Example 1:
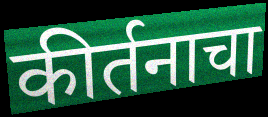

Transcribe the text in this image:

कीर्तनाचा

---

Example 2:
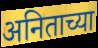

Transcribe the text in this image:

अनिताच्या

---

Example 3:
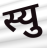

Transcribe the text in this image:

स्यु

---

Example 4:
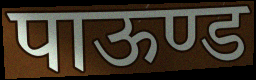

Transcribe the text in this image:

पाऊण्ड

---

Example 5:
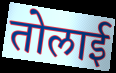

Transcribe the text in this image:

तोलाई